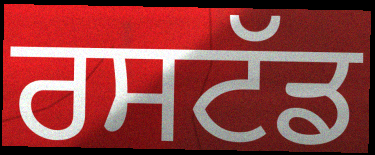
ਰਸਟੱਡ